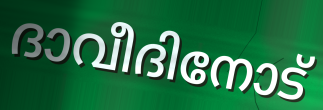
ദാവീദിനോട്